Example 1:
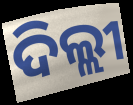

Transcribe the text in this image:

ଦିଲ୍ଲୀ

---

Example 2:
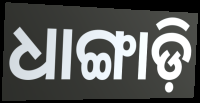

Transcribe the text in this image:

ଧାଙ୍ଗାଡ଼ି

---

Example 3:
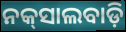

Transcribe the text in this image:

ନକ୍‌ସାଲବାଡ଼ି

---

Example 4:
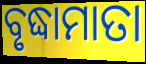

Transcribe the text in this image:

ବୃଦ୍ଧାମାତା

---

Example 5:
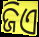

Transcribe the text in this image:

ଜିଏ